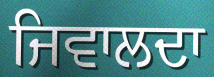
ਜਿਵਾਲਦਾ